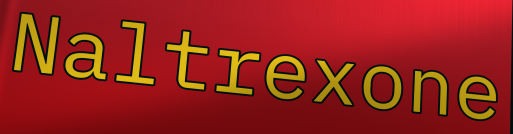
Naltrexone